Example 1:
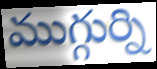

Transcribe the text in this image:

ముగ్గుర్ని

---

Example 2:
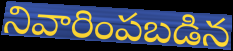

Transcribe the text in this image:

నివారింపబడిన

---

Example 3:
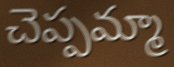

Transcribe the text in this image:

చెప్పమ్మా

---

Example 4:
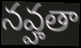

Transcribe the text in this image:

నవ్హతా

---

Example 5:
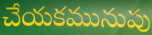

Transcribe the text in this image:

చేయకమునుపు